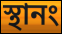
স্থানং